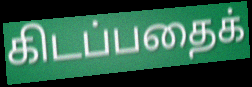
கிடப்பதைக்